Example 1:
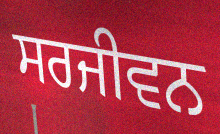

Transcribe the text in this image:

ਸਰਜੀਵਨ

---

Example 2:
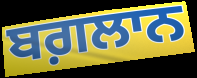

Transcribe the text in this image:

ਬਗ਼ਲਾਨ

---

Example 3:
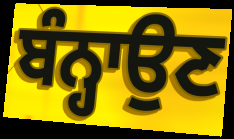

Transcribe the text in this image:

ਬੰਨ੍ਹਾਉਣ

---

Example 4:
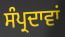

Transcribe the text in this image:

ਸੰਪ੍ਰਦਾਵਾਂ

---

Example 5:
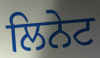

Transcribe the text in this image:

ਲਿਨੇਟ